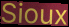
Sioux